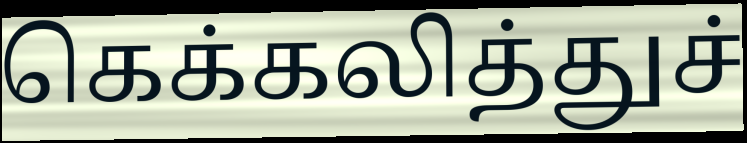
கெக்கலித்துச்